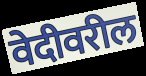
वेदीवरील